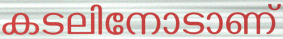
കടലിനോടാണ്